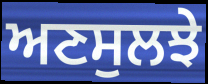
ਅਣਸੁਲਝੇ